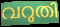
വറുതി